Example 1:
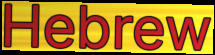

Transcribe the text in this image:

Hebrew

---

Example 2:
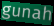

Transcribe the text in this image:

gunah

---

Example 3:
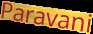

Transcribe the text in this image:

Paravani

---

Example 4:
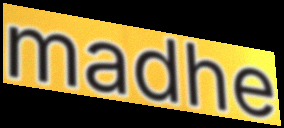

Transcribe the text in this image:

madhe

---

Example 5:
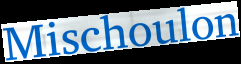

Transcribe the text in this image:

Mischoulon